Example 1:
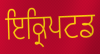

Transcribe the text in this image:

ਇਕ੍ਰਿਪਟਡ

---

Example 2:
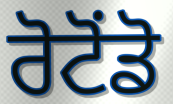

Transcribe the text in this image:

ਰੋਟੋਂਡੋ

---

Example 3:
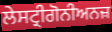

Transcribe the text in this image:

ਲੇਸਟ੍ਰੀਗੋਨੀਅਨਜ਼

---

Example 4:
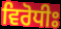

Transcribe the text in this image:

ਵਿਰੋਧੀਃ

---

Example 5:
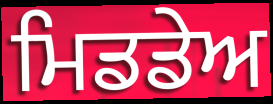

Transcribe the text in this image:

ਮਿਡਡੇਅ